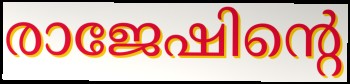
രാജേഷിന്റെ